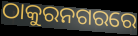
ଠାକୁରନଗରରେ